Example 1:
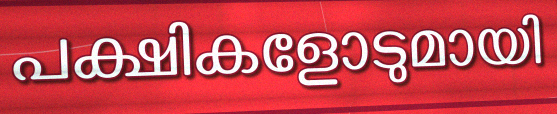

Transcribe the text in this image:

പക്ഷികളോടുമായി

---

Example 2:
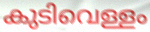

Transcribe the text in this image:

കുടിവെള്ളം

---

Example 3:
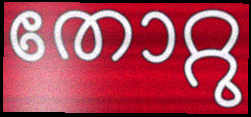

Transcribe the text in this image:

തോറ്റു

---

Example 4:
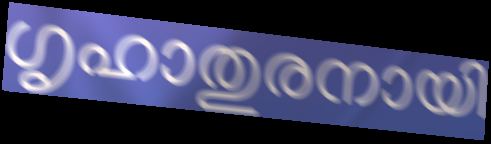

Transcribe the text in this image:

ഗൃഹാതുരനായി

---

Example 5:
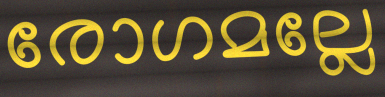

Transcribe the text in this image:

രോഗമല്ലേ